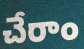
చేరాం